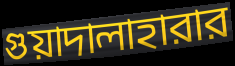
গুয়াদালাহারার